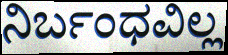
ನಿರ್ಬಂಧವಿಲ್ಲ